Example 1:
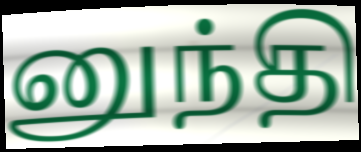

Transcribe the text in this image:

னுந்தி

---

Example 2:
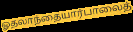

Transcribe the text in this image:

ஓதலாந்தையார்பாலைத்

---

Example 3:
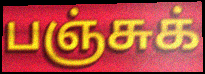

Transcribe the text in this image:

பஞ்சுக்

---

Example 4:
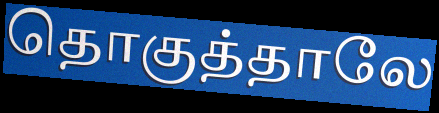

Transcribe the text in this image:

தொகுத்தாலே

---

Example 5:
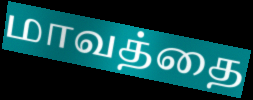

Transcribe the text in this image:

மாவத்தை